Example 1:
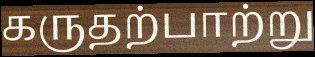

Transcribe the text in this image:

கருதற்பாற்று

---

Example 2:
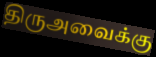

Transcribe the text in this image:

திருஅவைக்கு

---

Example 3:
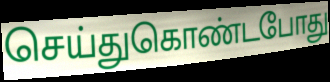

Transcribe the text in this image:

செய்துகொண்டபோது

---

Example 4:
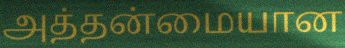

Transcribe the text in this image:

அத்தன்மையான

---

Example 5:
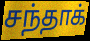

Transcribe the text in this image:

சந்தாக்